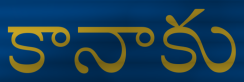
కానాకు